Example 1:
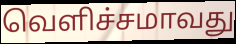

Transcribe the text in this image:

வெளிச்சமாவது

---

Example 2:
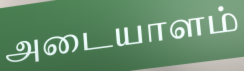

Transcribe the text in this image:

அடையாளம்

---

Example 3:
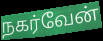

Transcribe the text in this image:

நகர்வேன்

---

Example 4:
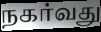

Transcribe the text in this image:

நகர்வது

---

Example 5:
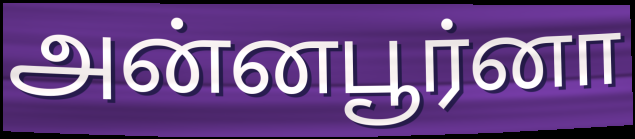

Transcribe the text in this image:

அன்னபூர்னா